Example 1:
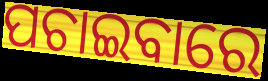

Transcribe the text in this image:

ପଚାଇବାରେ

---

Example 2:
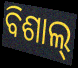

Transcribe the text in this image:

ବିଶାଲ୍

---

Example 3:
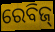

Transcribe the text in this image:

ରେବିଜ୍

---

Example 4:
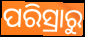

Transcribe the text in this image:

ପରିସ୍ରାରୁ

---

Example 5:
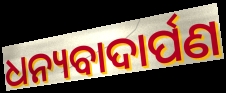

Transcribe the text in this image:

ଧନ୍ୟବାଦାର୍ପଣ